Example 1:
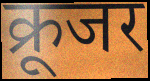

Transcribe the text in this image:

क्रूजर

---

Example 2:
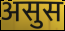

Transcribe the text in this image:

असुस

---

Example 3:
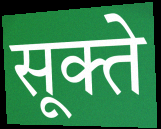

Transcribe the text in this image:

सूक्ते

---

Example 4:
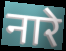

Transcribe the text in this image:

नारे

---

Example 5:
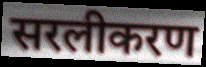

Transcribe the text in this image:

सरलीकरण